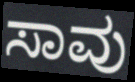
ಸಾವು